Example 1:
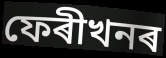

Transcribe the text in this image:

ফেৰীখনৰ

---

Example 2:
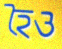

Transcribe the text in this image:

হৈও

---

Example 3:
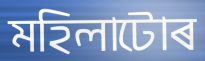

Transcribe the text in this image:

মহিলাটোৰ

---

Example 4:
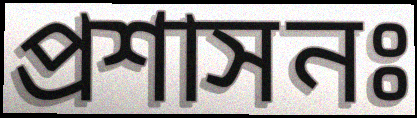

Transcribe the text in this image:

প্ৰশাসনঃ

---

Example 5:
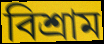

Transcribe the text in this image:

বিশ্ৰাম